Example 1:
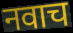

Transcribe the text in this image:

नवाच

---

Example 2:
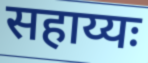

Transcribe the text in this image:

सहाय्यः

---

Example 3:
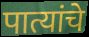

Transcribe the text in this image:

पात्यांचे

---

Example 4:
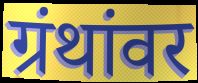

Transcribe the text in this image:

ग्रंथांवर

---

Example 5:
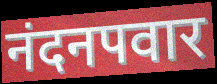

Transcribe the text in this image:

नंदनपवार